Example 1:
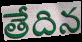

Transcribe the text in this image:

తేదిన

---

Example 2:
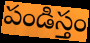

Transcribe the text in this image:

పండిస్తం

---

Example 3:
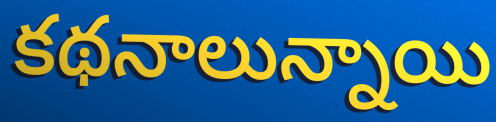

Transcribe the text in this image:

కథనాలున్నాయి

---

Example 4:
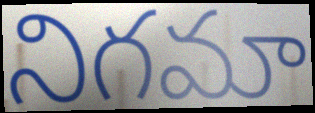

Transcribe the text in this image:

నిగమా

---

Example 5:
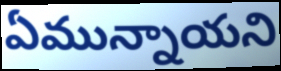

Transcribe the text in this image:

ఏమున్నాయని